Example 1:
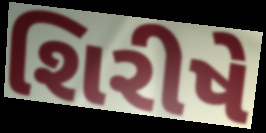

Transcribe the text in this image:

શિરીષે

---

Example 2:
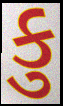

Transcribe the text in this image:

કુ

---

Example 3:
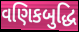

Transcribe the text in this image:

વણિકબુદ્ધિ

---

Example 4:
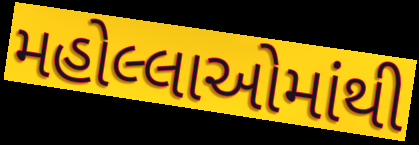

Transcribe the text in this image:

મહોલ્લાઓમાંથી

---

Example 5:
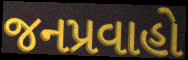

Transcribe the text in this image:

જનપ્રવાહો